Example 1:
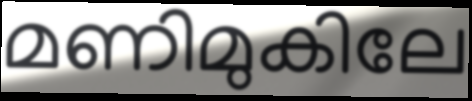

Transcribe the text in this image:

മണിമുകിലേ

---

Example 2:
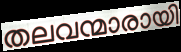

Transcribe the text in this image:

തലവന്മാരായി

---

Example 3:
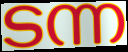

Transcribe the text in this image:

ടന്ന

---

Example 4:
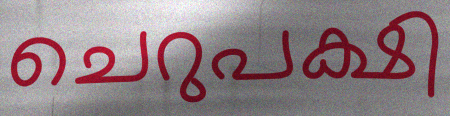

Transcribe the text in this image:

ചെറുപക്ഷി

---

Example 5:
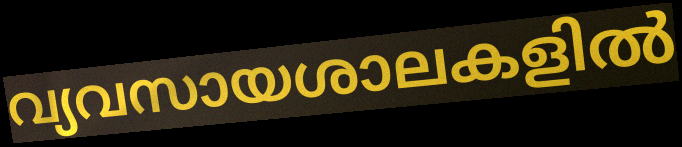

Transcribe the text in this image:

വ്യവസായശാലകളിൽ